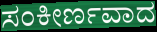
ಸಂಕೀರ್ಣವಾದ